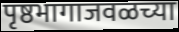
पृष्ठभागाजवळच्या